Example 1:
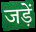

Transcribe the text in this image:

जड़ें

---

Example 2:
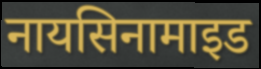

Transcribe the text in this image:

नायसिनामाइड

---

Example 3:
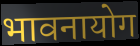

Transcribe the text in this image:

भावनायोग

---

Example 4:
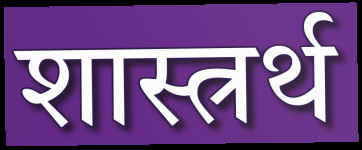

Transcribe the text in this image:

शास्त्रर्थ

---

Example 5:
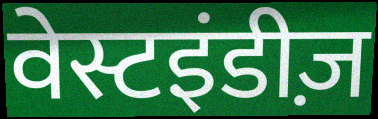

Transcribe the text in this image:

वेस्टइंडीज़